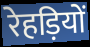
रेहड़ियों